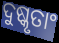
ଦୁଷ୍କୃତାଂ